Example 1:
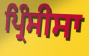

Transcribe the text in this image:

ਪ੍ਰਿੰਸੀਸਾ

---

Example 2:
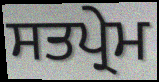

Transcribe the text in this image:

ਸਤਪ੍ਰੇਮ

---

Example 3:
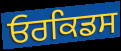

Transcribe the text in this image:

ਓਰਕਿਡਸ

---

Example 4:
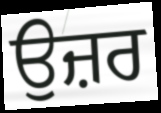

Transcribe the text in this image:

ਉਜ਼ਰ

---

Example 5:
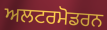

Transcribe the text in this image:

ਅਲਟਰਮੋਡਰਨ